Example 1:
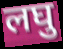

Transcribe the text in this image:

लघु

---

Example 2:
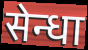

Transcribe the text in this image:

सेन्धा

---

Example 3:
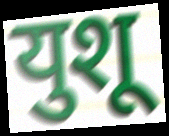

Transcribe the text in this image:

युशू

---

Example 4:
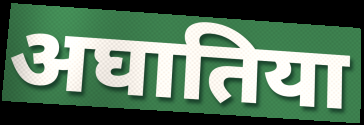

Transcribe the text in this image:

अघातिया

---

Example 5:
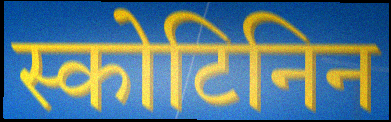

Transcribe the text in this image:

स्कोटिनिन